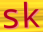
sk